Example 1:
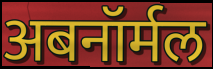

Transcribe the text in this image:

अबनॉर्मल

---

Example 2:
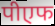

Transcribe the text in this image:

पीएफ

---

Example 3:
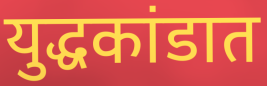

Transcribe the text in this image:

युद्धकांडात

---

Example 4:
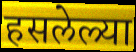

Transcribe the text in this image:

हसलेल्या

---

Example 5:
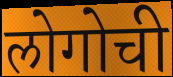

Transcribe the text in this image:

लोगोची